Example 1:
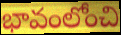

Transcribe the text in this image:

భావంలోంచి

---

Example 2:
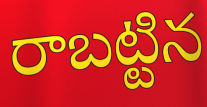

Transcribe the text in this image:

రాబట్టిన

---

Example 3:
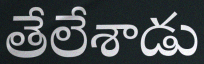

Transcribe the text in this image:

తేలేశాడు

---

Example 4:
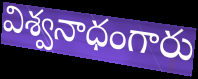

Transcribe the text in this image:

విశ్వనాధంగారు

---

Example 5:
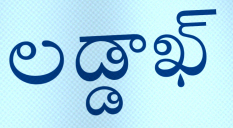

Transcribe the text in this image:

లడ్డాఖ్